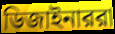
ডিজাইনাররা